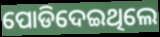
ପୋଡିଦେଇଥିଲେ